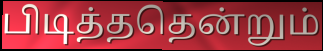
பிடித்ததென்றும்